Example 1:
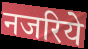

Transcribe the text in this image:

नजरिये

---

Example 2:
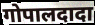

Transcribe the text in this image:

गोपालदादा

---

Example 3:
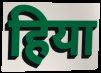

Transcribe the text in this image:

हिया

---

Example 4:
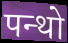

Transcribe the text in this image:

पन्थो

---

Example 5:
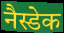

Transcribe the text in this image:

नैस्डेक